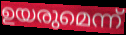
ഉയരുമെന്ന്